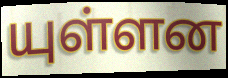
யுள்ளன